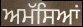
ਅਮੱਸਿਆਂ